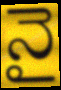
నై